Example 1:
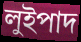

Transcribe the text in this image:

লুইপাদ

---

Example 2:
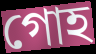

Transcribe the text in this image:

গোহ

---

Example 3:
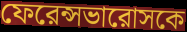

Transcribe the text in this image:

ফেরেন্সভারোসকে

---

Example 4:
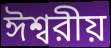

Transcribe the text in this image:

ঈশ্বরীয়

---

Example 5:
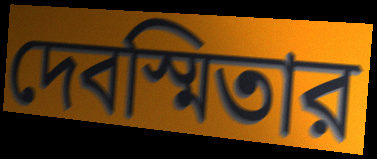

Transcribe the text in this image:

দেবস্মিতার